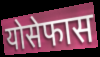
योसेफास